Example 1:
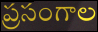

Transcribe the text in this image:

ప్రసంగాల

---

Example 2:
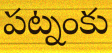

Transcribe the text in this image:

పట్నంకు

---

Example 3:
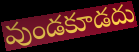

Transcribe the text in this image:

వుండకూడదు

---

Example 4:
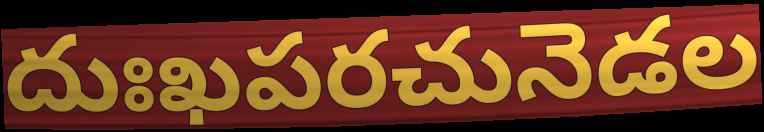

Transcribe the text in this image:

దుఃఖపరచునెడల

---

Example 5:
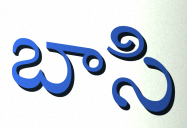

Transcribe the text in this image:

బాసి